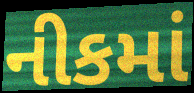
નીકમાં